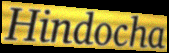
Hindocha